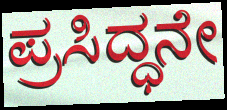
ಪ್ರಸಿದ್ಧನೇ